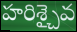
హరిశ్చైవ